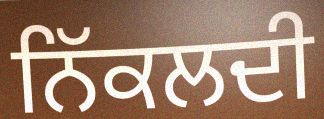
ਨਿੱਕਲਦੀ